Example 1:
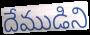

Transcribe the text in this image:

దేముడిని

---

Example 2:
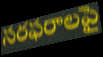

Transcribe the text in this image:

సరఫరాలపై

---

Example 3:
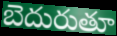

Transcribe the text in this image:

బెదురుతూ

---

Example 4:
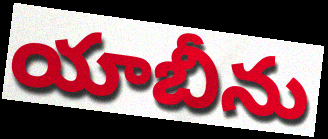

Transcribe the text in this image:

యాబీను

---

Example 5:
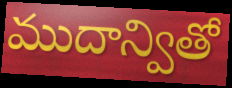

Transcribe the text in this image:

ముదాన్వితో